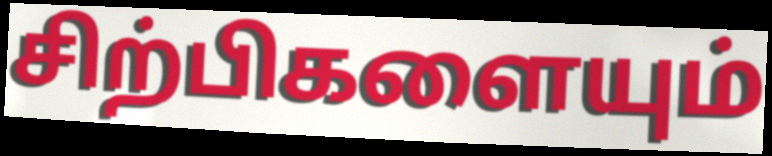
சிற்பிகளையும்